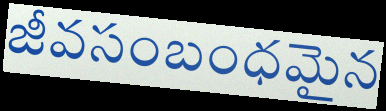
జీవసంబంధమైన